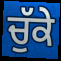
ਚੁੱਕੇ